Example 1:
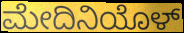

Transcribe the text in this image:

ಮೇದಿನಿಯೊಳ್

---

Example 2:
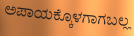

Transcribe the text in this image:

ಅಪಾಯಕ್ಕೊಳಗಾಗಬಲ್ಲ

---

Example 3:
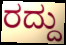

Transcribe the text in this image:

ರದ್ದು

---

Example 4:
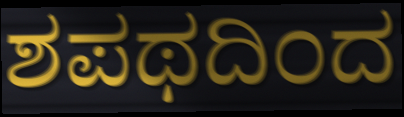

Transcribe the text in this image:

ಶಪಥದಿಂದ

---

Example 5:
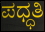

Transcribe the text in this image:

ಪಧ್ಧತಿ